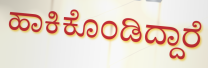
ಹಾಕಿಕೊಂಡಿದ್ದಾರೆ